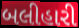
બલીહારી